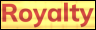
Royalty